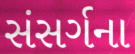
સંસર્ગના